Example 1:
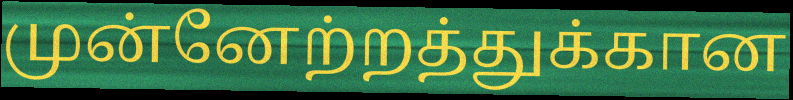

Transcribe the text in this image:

முன்னேற்றத்துக்கான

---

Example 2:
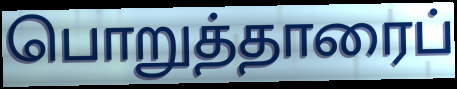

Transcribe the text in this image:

பொறுத்தாரைப்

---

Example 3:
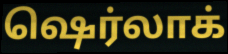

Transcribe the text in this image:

ஷெர்லாக்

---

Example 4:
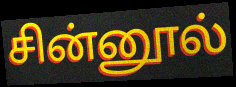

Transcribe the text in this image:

சின்னூல்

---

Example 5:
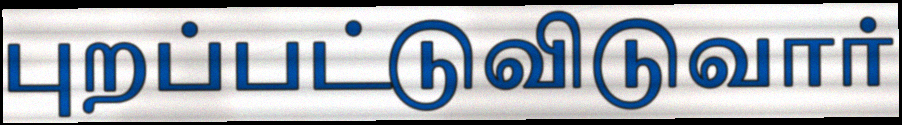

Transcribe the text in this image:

புறப்பட்டுவிடுவார்